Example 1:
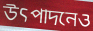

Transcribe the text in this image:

উৎপাদনেও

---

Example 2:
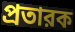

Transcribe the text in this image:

প্রতারক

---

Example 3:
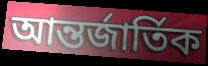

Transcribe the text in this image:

আন্তর্জার্তিক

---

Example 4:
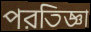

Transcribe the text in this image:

পরতিজ্ঞা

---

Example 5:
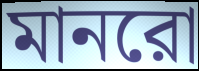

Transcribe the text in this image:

মানরো